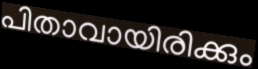
പിതാവായിരിക്കും